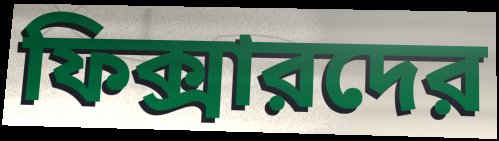
ফিক্সারদের